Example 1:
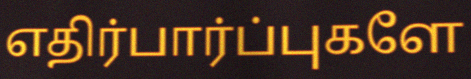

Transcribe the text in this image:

எதிர்பார்ப்புகளே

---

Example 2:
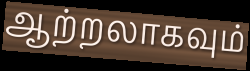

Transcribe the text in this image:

ஆற்றலாகவும்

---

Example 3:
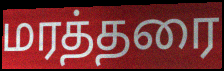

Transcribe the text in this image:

மரத்தரை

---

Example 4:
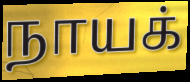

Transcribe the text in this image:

நாயக்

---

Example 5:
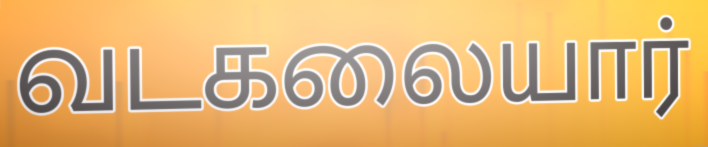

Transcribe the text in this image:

வடகலையார்